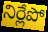
నిర్లేపో